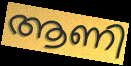
ആണി